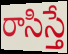
రాసిస్తే